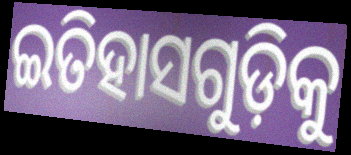
ଇତିହାସଗୁଡ଼ିକୁ